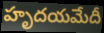
హృదయమేదీ